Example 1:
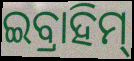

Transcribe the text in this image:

ଇବ୍ରାହିମ୍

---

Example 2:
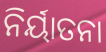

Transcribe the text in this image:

ନିର୍ୟାତନା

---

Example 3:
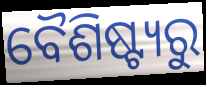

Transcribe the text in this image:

ବୈଶିଷ୍ଟ୍ୟରୁ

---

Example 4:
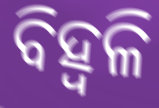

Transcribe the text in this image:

ବିହ୍ୱଳି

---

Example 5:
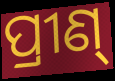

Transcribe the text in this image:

ପ୍ରୀଣ୍